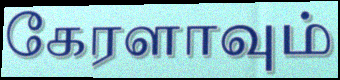
கேரளாவும்